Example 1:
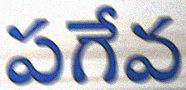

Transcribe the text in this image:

పగేవ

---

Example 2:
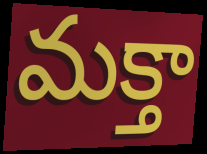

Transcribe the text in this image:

మక్తా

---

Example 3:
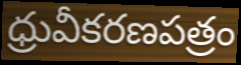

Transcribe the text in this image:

ధ్రువీకరణపత్రం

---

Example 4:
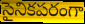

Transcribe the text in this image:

సైనికపరంగా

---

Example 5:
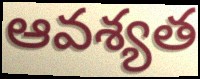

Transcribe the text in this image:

ఆవశ్యత